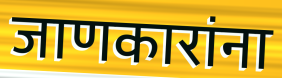
जाणकारांना